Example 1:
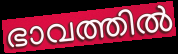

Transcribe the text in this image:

ഭാവത്തിൽ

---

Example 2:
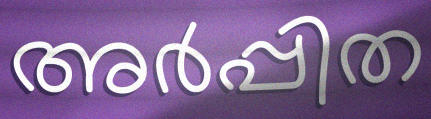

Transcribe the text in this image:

അർപ്പിത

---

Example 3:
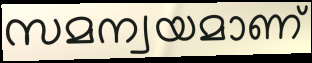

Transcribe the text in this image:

സമന്വയമാണ്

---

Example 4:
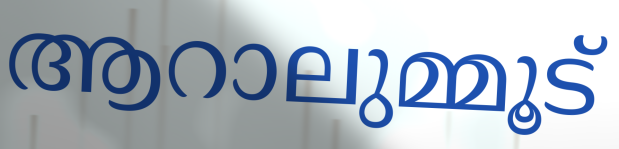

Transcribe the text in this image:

ആറാലുമ്മൂട്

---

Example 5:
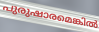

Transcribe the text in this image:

പുരുഷാരമെങ്കിൽ